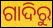
ଗାଦିରୁ